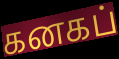
கனகப்